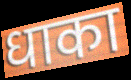
धाका